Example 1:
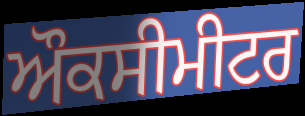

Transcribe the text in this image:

ਔਕਸੀਮੀਟਰ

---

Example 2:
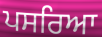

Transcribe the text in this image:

ਪਸਰਿਆ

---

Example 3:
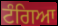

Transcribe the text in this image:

ਟੰਗਿਆ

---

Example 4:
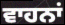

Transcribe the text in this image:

ਵਾਹਨਾਂ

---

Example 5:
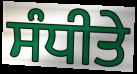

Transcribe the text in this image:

ਸੰਧੀਤੇ